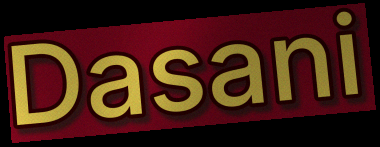
Dasani